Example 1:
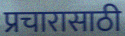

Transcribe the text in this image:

प्रचारासाठी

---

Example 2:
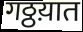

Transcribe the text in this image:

गठ्ठय़ात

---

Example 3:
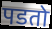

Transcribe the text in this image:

पडतो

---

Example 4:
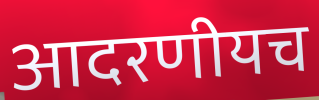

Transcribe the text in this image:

आदरणीयच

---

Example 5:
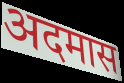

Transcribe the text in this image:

अदमास